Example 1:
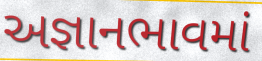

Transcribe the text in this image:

અજ્ઞાનભાવમાં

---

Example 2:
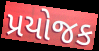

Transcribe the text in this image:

પ્રયોજક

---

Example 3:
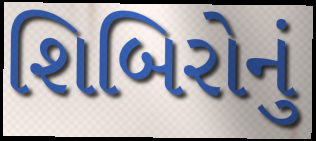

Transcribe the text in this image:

શિબિરોનું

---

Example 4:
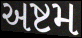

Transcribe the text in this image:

અષ્ટમ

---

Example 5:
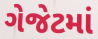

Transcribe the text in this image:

ગેજેટમાં